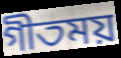
গীতময়